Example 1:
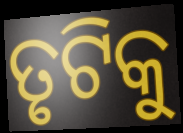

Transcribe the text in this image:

ତୃଟିକୁ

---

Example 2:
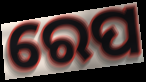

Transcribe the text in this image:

ରେପ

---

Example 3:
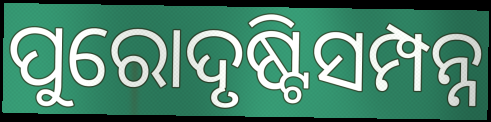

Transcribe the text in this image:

ପୁରୋଦୃଷ୍ଟିସମ୍ପନ୍ନ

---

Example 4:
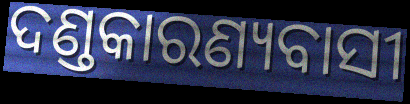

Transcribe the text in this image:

ଦଣ୍ଡକାରଣ୍ୟବାସୀ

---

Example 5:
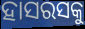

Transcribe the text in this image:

ହାସରସକୁ